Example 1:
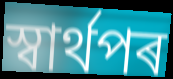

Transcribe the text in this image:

স্বাৰ্থপৰ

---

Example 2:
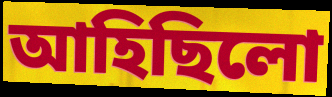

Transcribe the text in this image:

আহিছিলো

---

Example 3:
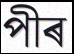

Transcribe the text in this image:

পীৰ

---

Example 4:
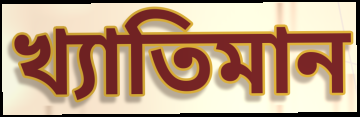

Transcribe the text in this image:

খ্যাতিমান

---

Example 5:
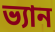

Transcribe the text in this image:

ভ্যান